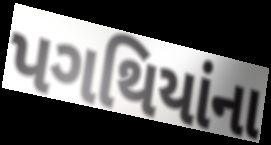
પગથિયાંના